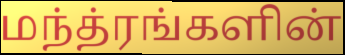
மந்த்ரங்களின்